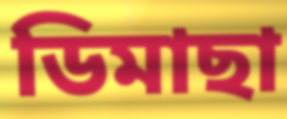
ডিমাছা